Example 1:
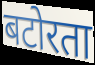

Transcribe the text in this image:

बटोरता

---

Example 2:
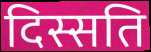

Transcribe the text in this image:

दिस्सति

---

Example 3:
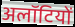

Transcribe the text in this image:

अलॉटियों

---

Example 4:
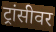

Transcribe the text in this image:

ट्रांसीवर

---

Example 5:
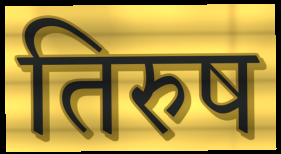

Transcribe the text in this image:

तिरुष